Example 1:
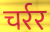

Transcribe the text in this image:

चर्रर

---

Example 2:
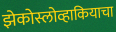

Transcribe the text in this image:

झेकोस्लोव्हाकियाचा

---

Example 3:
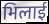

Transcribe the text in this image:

भिलाई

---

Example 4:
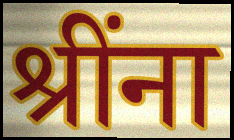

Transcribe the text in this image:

श्रींना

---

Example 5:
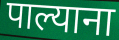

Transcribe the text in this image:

पाल्याना